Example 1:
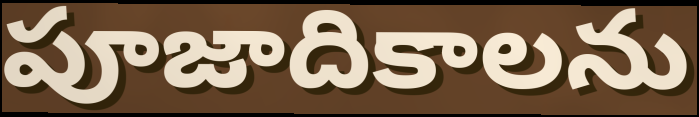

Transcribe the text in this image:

పూజాదికాలను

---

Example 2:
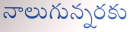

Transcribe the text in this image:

నాలుగున్నరకు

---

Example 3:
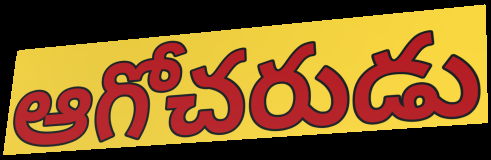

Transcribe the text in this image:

ఆగోచరుడు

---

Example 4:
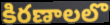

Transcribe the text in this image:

కిరణాలలొ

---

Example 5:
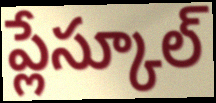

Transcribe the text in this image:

ప్లేస్కూల్